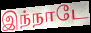
இந்நாடே